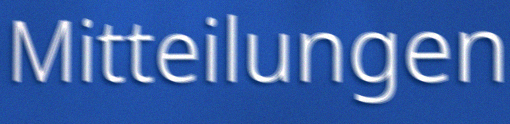
Mitteilungen